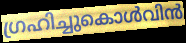
ഗ്രഹിച്ചുകൊൾവിൻ